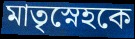
মাতৃস্নেহকে